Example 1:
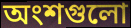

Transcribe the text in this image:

অংশগুলো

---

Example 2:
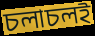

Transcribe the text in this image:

চলাচলই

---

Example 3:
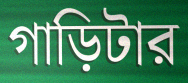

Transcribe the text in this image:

গাড়িটার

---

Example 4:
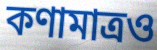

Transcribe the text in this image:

কণামাত্রও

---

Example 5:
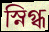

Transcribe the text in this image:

স্নিগ্ধ